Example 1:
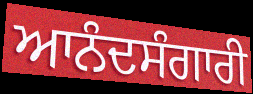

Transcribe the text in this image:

ਆਨੰਦਸੰਗਾਰੀ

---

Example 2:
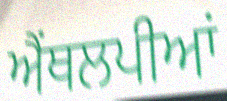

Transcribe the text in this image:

ਐਂਥਲਪੀਆਂ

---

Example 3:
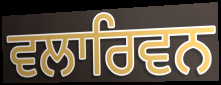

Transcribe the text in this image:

ਵਲਾਰਿਵਨ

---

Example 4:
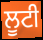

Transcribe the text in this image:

ਲੂਟੀ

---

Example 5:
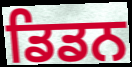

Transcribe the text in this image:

ਡਿਡਨ